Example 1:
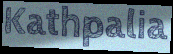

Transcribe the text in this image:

Kathpalia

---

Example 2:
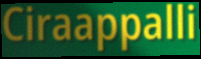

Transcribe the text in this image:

Ciraappalli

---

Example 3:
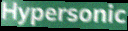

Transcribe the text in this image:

Hypersonic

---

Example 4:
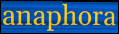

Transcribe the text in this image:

anaphora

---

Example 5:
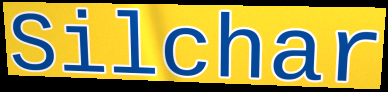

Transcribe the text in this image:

Silchar